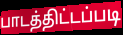
பாடத்திட்டப்படி